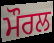
ਮੌਰਲ